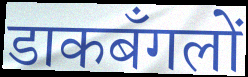
डाकबँगलों